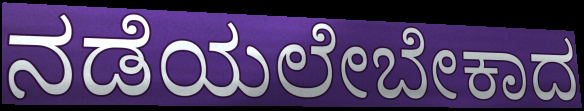
ನಡೆಯಲೇಬೇಕಾದ